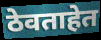
ठेवताहेत